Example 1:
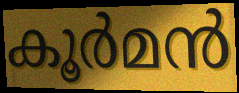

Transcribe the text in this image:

കൂർമൻ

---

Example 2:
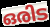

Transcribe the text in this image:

ഒരിട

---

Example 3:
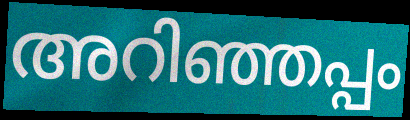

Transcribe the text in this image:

അറിഞ്ഞപ്പം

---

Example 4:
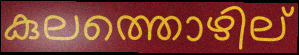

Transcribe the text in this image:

കുലത്തൊഴില്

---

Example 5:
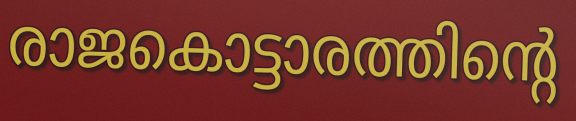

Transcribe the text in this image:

രാജകൊട്ടാരത്തിന്റെ